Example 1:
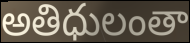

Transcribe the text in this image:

అతిధులంతా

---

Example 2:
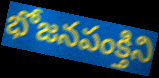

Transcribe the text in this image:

భోజనపంక్తిని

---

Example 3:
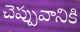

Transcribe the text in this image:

చెప్పువానికి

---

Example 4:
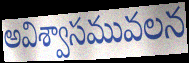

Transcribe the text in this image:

అవిశ్వాసమువలన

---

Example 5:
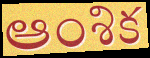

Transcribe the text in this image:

ఆంశిక